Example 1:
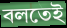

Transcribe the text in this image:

বলতেই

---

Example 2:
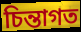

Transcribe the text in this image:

চিন্তাগত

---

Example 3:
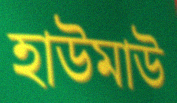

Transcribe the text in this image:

হাউমাউ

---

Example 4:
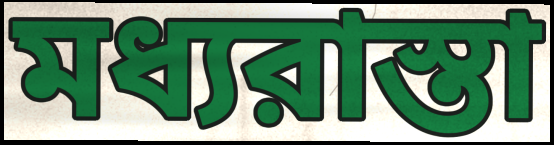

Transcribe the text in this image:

মধ্যরাস্তা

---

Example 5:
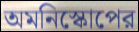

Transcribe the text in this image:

অমনিস্কোপের